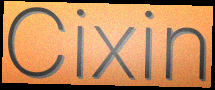
Cixin